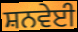
ਸ਼ਨਵੇਈ